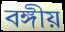
বঙ্গীয়